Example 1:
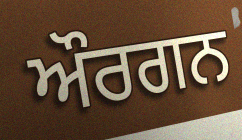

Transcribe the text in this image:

ਔਰਗਨ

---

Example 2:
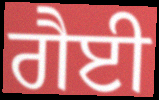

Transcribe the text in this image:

ਗੈਈ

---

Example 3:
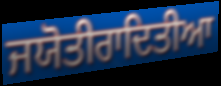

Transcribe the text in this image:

ਜਯੋਤੀਰਾਦਿਤੀਆ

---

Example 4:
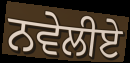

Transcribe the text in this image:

ਨਵੇਲੀਏ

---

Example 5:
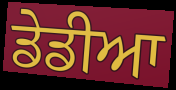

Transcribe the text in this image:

ਡੇਡੀਆ